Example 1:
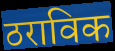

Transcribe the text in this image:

ठराविक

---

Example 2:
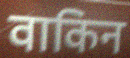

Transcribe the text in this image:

वाकिन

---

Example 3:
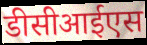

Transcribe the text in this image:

डीसीआईएस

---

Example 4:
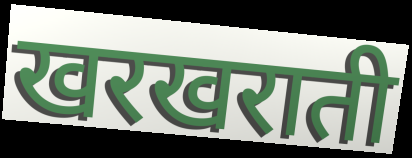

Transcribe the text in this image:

खरखराती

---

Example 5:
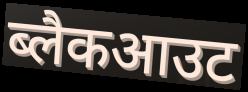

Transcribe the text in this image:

ब्लैकआउट